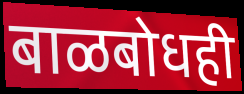
बाळबोधही